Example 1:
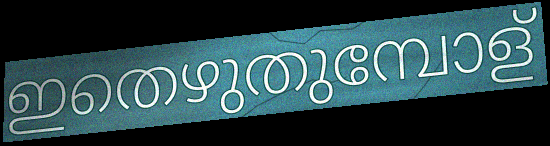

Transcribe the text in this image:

ഇതെഴുതുമ്പോള്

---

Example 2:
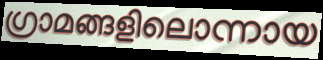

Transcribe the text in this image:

ഗ്രാമങ്ങളിലൊന്നായ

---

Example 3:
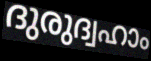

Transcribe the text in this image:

ദുരുദ്വഹാം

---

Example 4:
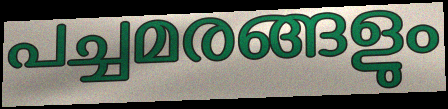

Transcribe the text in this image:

പച്ചമരങ്ങളും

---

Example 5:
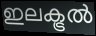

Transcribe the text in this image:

ഇലക്ട്രൽ